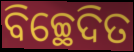
ବିଚ୍ଛେଦିତ